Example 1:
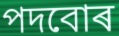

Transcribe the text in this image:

পদবোৰ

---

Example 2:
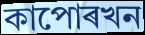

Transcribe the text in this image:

কাপোৰখন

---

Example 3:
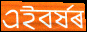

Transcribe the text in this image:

এইবৰ্ষৰ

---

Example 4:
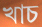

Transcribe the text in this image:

খাচ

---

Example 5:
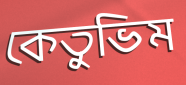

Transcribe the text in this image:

কেতুভিম